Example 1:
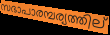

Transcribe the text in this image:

സഭാപാരമ്പര്യത്തില്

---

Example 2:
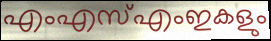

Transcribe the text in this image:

എംഎസ്എംഇകളും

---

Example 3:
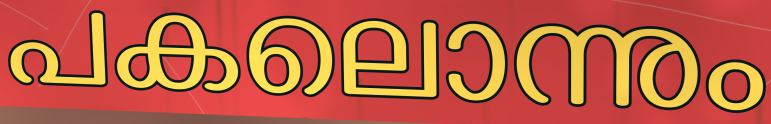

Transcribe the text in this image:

പകലൊന്നും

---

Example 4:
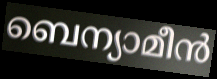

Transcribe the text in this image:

ബെന്യാമീൻ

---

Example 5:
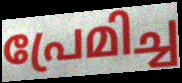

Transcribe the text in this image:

പ്രേമിച്ച